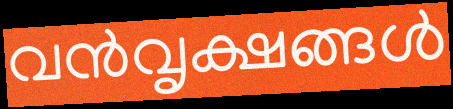
വൻവൃക്ഷങ്ങൾ